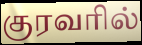
குரவரில்